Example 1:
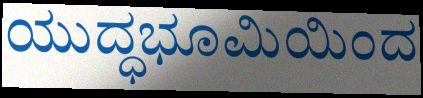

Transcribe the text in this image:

ಯುದ್ಧಭೂಮಿಯಿಂದ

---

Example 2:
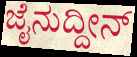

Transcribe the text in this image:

ಜೈನುದ್ದೀನ್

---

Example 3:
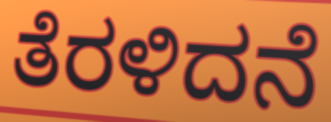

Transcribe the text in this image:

ತೆರಳಿದನೆ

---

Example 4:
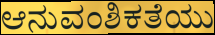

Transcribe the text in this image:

ಆನುವಂಶಿಕತೆಯು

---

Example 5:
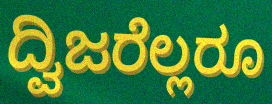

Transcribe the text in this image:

ದ್ವಿಜರೆಲ್ಲರೂ